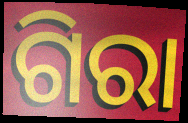
ଗିରା